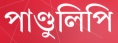
পাণ্ডুলিপি